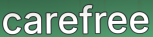
carefree